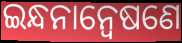
ଇନ୍ଧନାନ୍ଵେଷଣେ